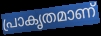
പ്രാകൃതമാണ്